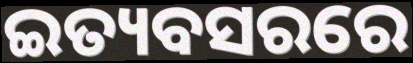
ଇତ୍ୟବସରରେ